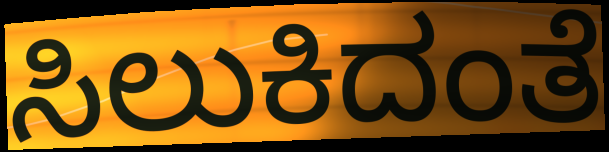
ಸಿಲುಕಿದಂತೆ